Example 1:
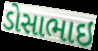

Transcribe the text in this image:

ડોસાભાઇ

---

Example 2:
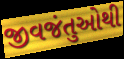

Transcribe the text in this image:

જીવજંતુઓથી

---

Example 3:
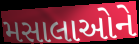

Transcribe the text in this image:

મસાલાઓને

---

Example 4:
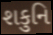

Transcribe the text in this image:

શકુનિ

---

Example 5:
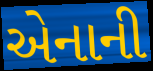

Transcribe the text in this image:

એનાની